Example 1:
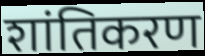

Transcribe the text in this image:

शांतिकरण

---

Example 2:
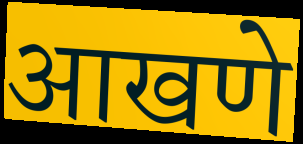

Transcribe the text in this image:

आखणे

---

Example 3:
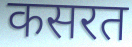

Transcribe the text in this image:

कसरत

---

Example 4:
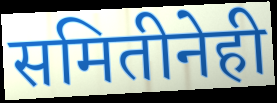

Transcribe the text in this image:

समितीनेही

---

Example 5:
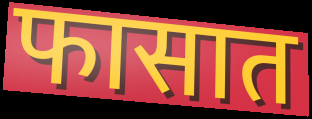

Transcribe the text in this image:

फासात